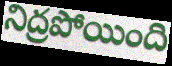
నిద్రపోయింది